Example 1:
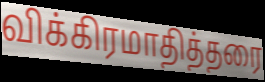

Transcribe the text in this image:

விக்கிரமாதித்தரை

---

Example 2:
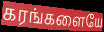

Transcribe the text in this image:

கரங்களையே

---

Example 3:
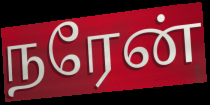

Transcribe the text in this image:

நரேன்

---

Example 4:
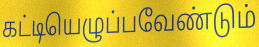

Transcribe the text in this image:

கட்டியெழுப்பவேண்டும்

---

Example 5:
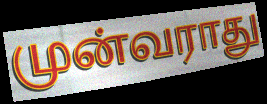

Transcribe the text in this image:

முன்வராது